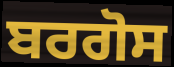
ਬਰਗੋਸ